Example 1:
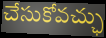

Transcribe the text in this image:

చేసుకోవచ్ఛు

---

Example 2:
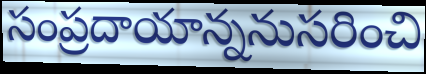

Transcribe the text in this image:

సంప్రదాయాన్ననుసరించి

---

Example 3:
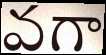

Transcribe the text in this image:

వగా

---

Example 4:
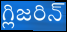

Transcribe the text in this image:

గ్లిజరిన్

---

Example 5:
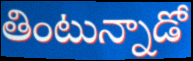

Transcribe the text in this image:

తింటున్నాడో